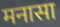
मनासा